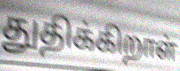
துதிக்கிறாள்